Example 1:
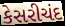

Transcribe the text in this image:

કેસરીચંદ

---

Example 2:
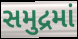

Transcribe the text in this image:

સમુદ્રમાં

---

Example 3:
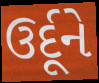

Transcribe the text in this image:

ઉર્દૂને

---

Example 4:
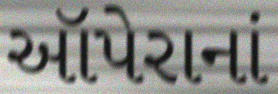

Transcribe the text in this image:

ઑપેરાનાં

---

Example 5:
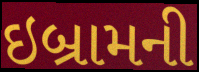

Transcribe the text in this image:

ઇબ્રામની